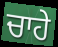
ਚਾਹੇ